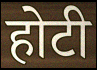
होटी